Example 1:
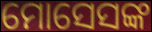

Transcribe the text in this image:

ମୋସେସଙ୍କ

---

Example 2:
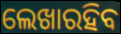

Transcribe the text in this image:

ଲେଖାରହିବ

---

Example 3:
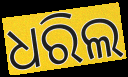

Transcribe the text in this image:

ଧରିଲ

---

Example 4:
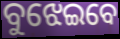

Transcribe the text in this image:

ବୁଝେଇବେ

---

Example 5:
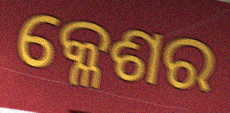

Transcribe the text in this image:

କ୍ଳେଶର